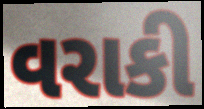
વરાકી